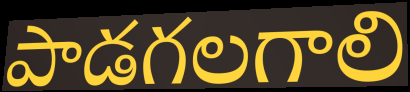
పాడగలగాలి